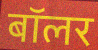
बॉलर